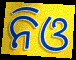
ନିଓ